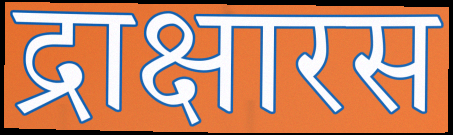
द्राक्षारस